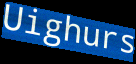
Uighurs